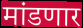
मांडणार